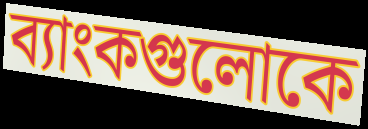
ব্যাংকগুলোকে